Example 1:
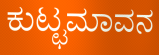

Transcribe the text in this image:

ಕುಟ್ಟಮಾವನ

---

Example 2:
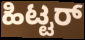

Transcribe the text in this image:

ಹಿಟ್ಟರ್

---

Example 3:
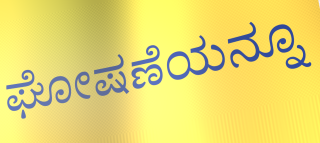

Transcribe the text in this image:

ಘೋಷಣೆಯನ್ನೂ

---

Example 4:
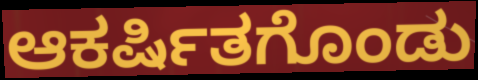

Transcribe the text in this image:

ಆಕರ್ಷಿತಗೊಂಡು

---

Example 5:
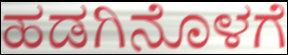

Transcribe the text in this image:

ಹಡಗಿನೊಳಗೆ